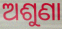
ଅଶୁଣା